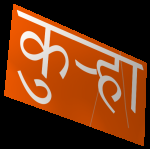
कुऱ्हा